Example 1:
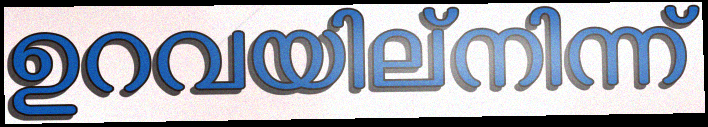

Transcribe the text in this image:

ഉറവയില്നിന്ന്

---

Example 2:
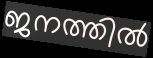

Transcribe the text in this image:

ജനത്തിൽ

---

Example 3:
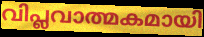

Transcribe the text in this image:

വിപ്ലവാത്മകമായി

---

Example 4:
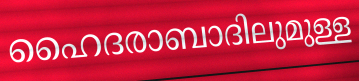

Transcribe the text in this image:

ഹൈദരാബാദിലുമുള്ള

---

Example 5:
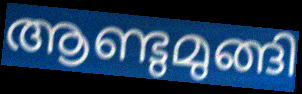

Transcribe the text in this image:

ആണ്ടുമുങ്ങി